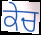
ਕੇਚ